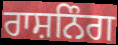
ਰਾਸ਼ਨਿੰਗ